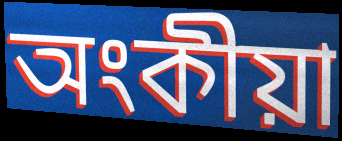
অংকীয়া